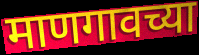
माणगावच्या